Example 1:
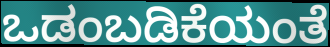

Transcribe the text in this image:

ಒಡಂಬಡಿಕೆಯಂತೆ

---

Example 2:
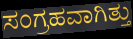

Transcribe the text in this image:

ಸಂಗ್ರಹವಾಗಿತ್ತು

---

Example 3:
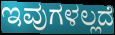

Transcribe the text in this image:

ಇವುಗಳಲ್ಲದೆ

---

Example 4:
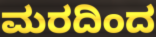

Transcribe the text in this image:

ಮರದಿಂದ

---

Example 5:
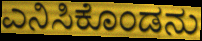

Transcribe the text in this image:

ಎನಿಸಿಕೊಂಡನು